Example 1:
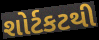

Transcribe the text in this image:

શોર્ટકટથી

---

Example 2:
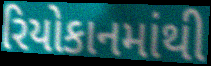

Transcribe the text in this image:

રિયોકાનમાંથી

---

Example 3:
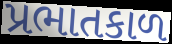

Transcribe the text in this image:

પ્રભાતકાળ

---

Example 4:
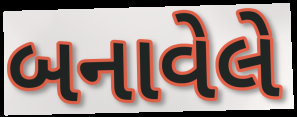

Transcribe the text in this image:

બનાવેલે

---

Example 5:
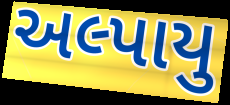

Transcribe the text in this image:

અલ્પાયુ